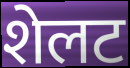
शेलट